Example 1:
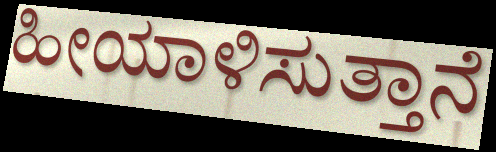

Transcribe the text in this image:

ಹೀಯಾಳಿಸುತ್ತಾನೆ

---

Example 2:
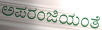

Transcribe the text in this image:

ಅಪರಂಜಿಯಂತೆ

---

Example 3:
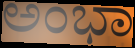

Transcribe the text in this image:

ಅಂಭಾ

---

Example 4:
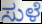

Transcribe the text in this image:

ಸುಳೆ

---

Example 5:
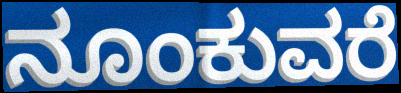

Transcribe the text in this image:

ನೂಂಕುವರೆ